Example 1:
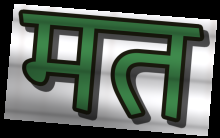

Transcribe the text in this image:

मत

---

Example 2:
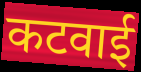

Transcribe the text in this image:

कटवाई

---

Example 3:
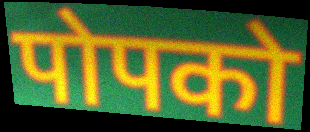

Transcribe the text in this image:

पोपको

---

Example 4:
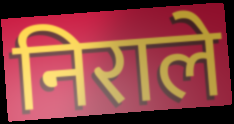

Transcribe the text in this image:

निराले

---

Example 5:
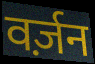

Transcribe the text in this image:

वर्ज़न